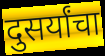
दुसर्यांचा